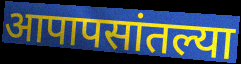
आपापसांतल्या